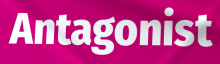
Antagonist